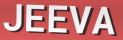
JEEVA